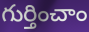
గుర్తించాం